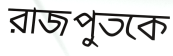
রাজপুতকে